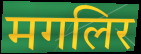
मगलिर